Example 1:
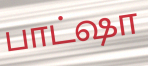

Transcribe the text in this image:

பாட்ஷா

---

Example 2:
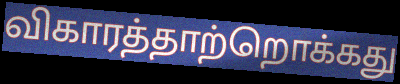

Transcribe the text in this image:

விகாரத்தாற்றொக்கது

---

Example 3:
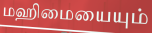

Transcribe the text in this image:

மஹிமையையும்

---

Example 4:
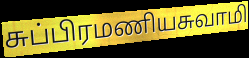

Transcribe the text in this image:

சுப்பிரமணியசுவாமி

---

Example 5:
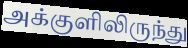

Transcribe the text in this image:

அக்குளிலிருந்து